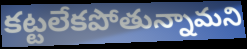
కట్టలేకపోతున్నామని